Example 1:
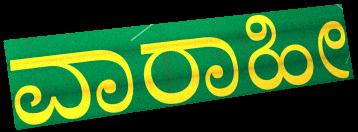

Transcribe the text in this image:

ವಾರಾಹೀ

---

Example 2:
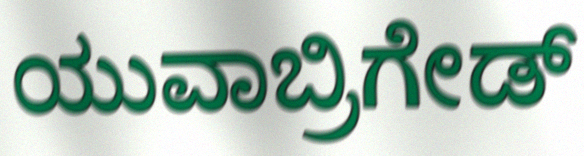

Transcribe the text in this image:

ಯುವಾಬ್ರಿಗೇಡ್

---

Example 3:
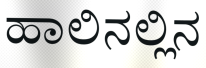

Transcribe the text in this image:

ಹಾಲಿನಲ್ಲಿನ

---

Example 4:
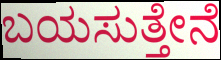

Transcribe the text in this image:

ಬಯಸುತ್ತೇನೆ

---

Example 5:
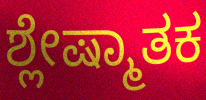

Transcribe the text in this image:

ಶ್ಲೇಷ್ಮಾತಕ